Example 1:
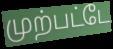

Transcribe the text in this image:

முற்பட்டே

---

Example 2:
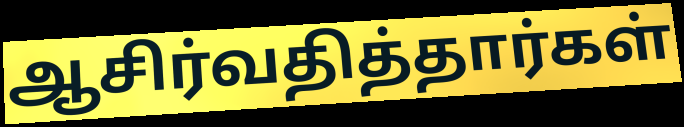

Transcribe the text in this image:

ஆசிர்வதித்தார்கள்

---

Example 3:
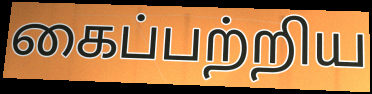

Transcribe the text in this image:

கைப்பற்றிய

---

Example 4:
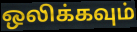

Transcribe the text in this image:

ஒலிக்கவும்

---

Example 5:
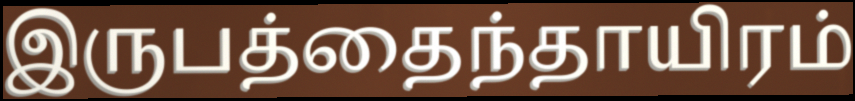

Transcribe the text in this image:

இருபத்தைந்தாயிரம்